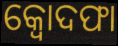
କ୍ବୋଦଫା